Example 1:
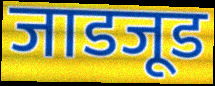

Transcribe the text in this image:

जाडजूड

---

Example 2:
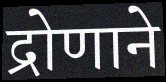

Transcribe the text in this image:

द्रोणाने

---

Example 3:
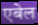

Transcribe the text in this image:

एबेल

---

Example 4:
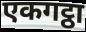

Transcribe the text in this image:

एकगट्ठा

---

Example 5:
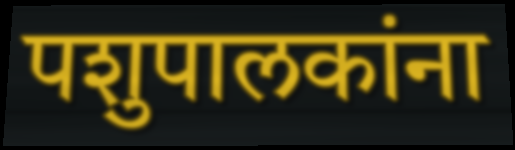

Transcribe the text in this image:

पशुपालकांना